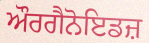
ਔਰਗੈਨੋਇਡਜ਼